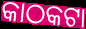
କାଠକଟା